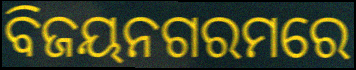
ବିଜୟନଗରମରେ